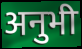
अनुभी